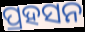
ପ୍ରହସନ